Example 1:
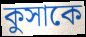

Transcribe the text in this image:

কুসাকে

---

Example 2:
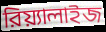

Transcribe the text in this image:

রিয়্যালাইজ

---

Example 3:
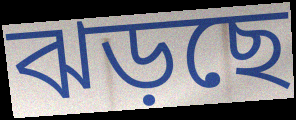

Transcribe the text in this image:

ঝড়ছে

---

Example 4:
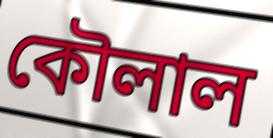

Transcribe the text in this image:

কৌলাল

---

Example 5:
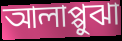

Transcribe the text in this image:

আলাপ্পুঝা